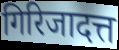
गिरिजादत्त